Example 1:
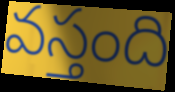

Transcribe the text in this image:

వస్తంది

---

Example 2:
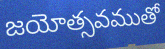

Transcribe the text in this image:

జయోత్సవముతో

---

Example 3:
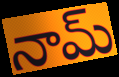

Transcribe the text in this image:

నామ్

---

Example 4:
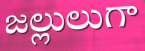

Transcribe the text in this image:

జల్లులుగా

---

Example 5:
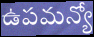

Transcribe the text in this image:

ఉపమన్యో